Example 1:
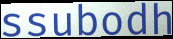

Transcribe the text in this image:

ssubodh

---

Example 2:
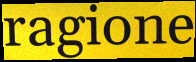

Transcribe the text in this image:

ragione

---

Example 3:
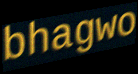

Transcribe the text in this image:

bhagwo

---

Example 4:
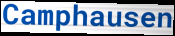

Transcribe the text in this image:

Camphausen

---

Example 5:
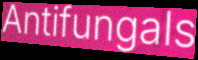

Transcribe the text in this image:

Antifungals